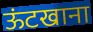
ऊंटखाना